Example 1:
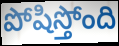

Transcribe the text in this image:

పోషిస్తోంది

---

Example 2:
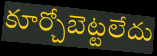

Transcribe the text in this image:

కూర్చోబెట్టలేదు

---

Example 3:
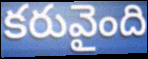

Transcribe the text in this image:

కరువైంది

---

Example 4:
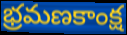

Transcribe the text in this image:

భ్రమణకాంక్ష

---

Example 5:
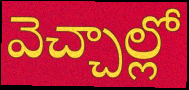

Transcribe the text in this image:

వెచ్చాల్లో